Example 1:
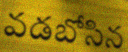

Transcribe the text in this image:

వడబోసిన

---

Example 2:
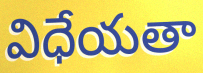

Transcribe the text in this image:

విధేయతా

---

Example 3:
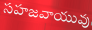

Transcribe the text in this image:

సహజవాయువు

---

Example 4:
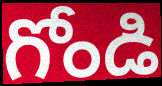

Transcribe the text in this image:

గోండి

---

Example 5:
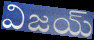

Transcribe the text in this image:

విజయ్